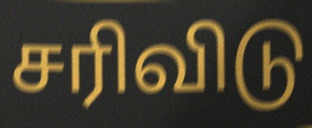
சரிவிடு